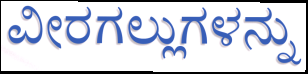
ವೀರಗಲ್ಲುಗಳನ್ನು